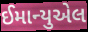
ઈમાન્યુએલ